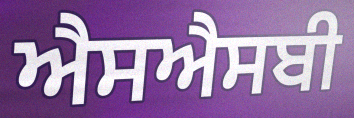
ਐਸਐਸਬੀ